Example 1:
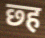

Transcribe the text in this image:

छ्ह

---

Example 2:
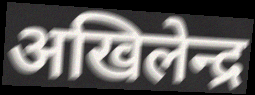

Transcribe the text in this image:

अखिलेन्द्र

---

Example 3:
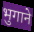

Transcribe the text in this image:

भुगाने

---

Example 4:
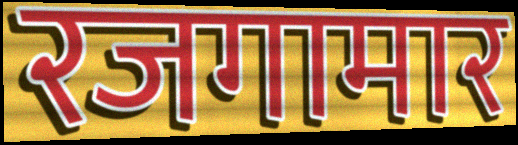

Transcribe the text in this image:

रजगामार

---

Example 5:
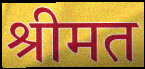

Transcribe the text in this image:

श्रीमत